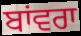
ਬਾਂਵਰਾ